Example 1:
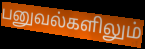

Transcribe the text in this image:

பனுவல்களிலும்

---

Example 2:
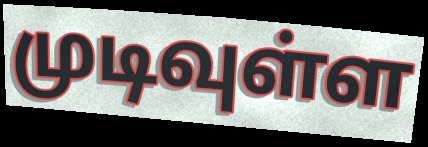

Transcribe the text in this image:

முடிவுள்ள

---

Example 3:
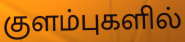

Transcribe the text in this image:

குளம்புகளில்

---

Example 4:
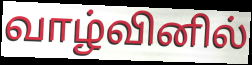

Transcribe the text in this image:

வாழ்வினில்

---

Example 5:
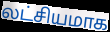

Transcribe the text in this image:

லட்சியமாக